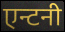
एन्टनी